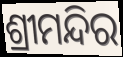
ଶ୍ରୀମନ୍ଦିର